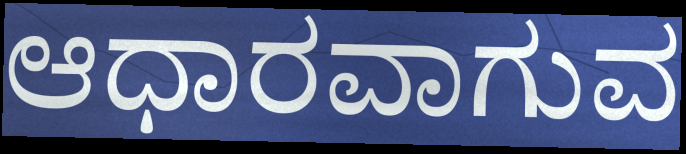
ಆಧಾರವಾಗುವ